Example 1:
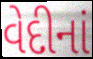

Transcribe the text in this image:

વેદીનાં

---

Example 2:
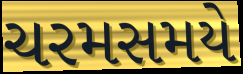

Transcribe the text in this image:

ચરમસમયે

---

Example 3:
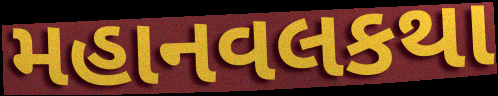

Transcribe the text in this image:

મહાનવલકથા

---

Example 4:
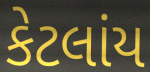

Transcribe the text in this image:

કેટલાંય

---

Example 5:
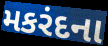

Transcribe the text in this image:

મકરંદના